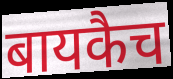
बायकैच